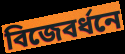
বিজেবর্ধনে